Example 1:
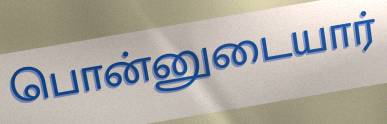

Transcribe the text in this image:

பொன்னுடையார்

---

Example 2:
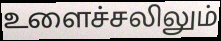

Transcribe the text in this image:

உளைச்சலிலும்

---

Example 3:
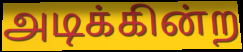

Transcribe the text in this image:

அடிக்கின்ற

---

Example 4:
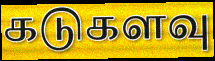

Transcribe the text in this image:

கடுகளவு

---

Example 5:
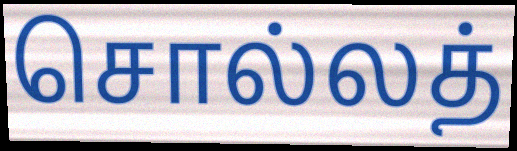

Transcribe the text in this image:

சொல்லத்